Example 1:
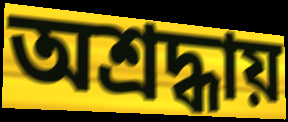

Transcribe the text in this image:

অশ্রদ্ধায়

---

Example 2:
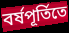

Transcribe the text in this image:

বর্ষপূর্তিতে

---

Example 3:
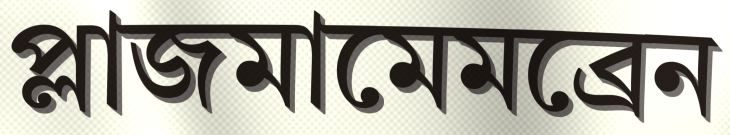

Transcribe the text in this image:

প্লাজমামেমব্রেন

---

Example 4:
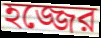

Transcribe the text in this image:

হজ্জের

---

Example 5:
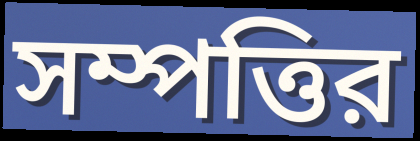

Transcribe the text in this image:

সম্পত্তির